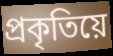
প্ৰকৃতিয়ে